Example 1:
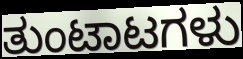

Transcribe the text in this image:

ತುಂಟಾಟಗಳು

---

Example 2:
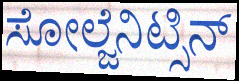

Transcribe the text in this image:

ಸೋಲ್ಜೆನಿಟ್ಸಿನ್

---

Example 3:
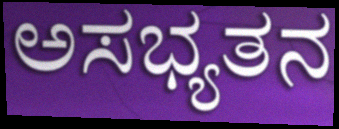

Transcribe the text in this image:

ಅಸಭ್ಯತನ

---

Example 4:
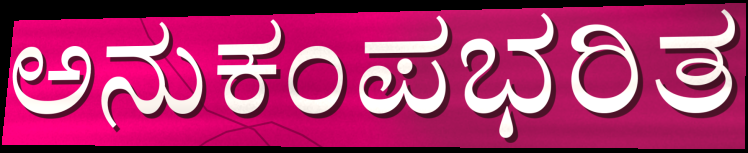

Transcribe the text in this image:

ಅನುಕಂಪಭರಿತ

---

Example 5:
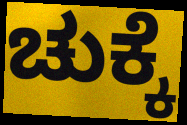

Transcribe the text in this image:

ಚುಕ್ಕೆ